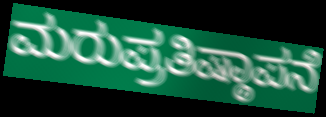
ಮರುಪ್ರತಿಷ್ಠಾಪನೆ